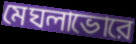
মেঘলাভোরে